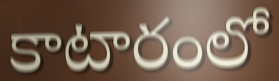
కాటారంలో